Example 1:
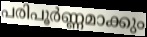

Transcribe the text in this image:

പരിപൂർണ്ണമാക്കും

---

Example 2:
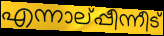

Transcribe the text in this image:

എന്നാല്പ്പീന്നീട്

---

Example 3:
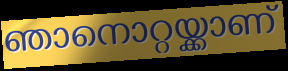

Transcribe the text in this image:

ഞാനൊറ്റയ്ക്കാണ്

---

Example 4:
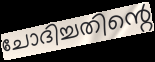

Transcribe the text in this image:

ചോദിച്ചതിന്റെ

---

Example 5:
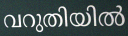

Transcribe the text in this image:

വറുതിയിൽ